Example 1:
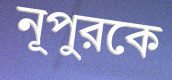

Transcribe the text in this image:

নূপুরকে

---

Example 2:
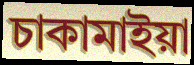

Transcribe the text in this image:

চাকামাইয়া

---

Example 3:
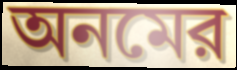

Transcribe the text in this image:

অনমের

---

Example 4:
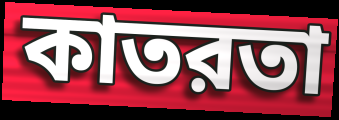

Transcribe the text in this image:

কাতরতা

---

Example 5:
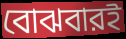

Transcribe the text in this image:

বোঝবারই